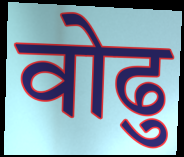
वोढु